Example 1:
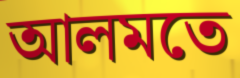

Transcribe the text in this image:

আলমতে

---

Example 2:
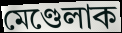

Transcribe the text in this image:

মেণ্ডেলাক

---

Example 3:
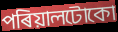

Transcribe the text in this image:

পৰিয়ালটোকো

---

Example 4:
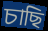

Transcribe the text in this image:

চাছি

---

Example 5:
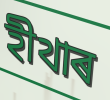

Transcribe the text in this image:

হীথাৰ